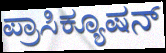
ಪ್ರಾಸಿಕ್ಯೂಷನ್